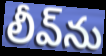
లీవ్‌ను